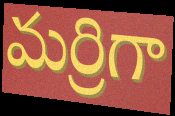
మర్రిగా